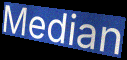
Median